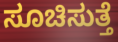
ಸೂಚಿಸುತ್ತೆ